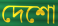
দেশো